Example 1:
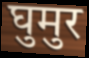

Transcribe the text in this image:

घुमुर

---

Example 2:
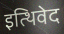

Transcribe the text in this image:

इत्थिवेद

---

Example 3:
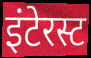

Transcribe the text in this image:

इंटेरस्ट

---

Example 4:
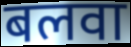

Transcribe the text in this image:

बलवा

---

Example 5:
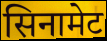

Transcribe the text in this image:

सिनामेट